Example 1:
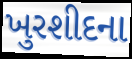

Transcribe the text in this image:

ખુરશીદના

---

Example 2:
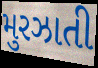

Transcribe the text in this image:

મુરઝાતી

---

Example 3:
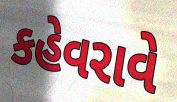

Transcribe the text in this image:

કહેવરાવે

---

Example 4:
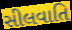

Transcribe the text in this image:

સીલવાતિ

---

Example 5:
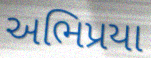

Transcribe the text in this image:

અભિપ્રયા